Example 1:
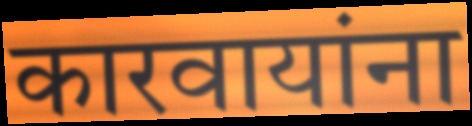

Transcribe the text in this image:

कारवायांना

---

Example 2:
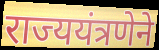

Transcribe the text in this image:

राज्ययंत्रणेने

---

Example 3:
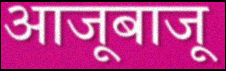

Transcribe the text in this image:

आजूबाजू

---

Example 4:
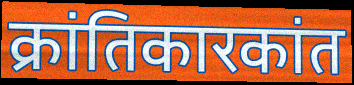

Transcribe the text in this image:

क्रांतिकारकांत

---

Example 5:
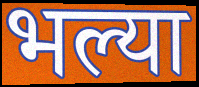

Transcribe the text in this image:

भल्या